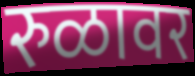
रुळावर